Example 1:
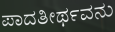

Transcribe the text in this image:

ಪಾದತೀರ್ಥವನು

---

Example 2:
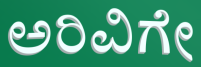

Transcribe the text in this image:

ಅರಿವಿಗೇ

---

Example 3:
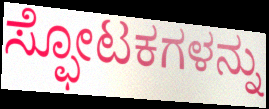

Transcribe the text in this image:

ಸ್ಫೋಟಕಗಳನ್ನು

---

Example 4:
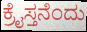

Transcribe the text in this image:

ಕ್ರೈಸ್ತನೆಂದು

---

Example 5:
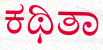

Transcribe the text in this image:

ಕಥಿತಾ